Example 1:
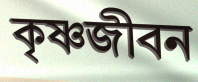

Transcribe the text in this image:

কৃষ্ণজীবন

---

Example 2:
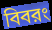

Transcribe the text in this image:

বিবরং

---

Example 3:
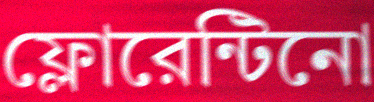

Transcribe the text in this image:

ফ্লোরেন্টিনো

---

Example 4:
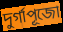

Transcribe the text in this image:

দুর্গাপূজো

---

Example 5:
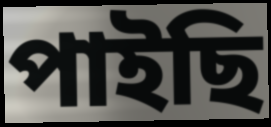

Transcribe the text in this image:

পাইছি